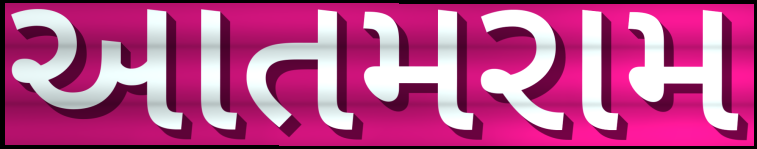
આતમરામ